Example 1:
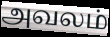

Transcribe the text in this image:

அவலம்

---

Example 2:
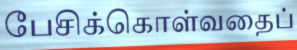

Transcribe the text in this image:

பேசிக்கொள்வதைப்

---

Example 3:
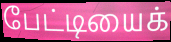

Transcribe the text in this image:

பேட்டியைக்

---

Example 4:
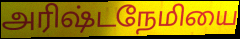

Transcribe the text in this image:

அரிஷ்டநேமியை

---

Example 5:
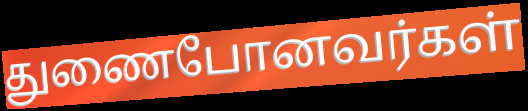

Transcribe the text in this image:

துணைபோனவர்கள்